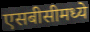
एसबीसीमध्ये